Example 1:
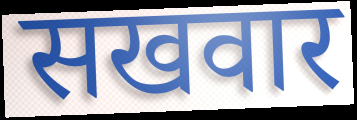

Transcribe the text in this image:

सखवार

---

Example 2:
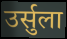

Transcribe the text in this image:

उर्सुला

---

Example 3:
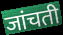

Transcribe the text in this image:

जांचती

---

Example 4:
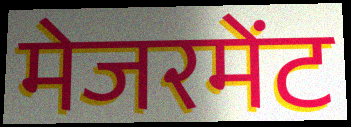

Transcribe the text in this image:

मेजरमेंट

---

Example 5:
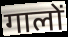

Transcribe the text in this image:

गालों